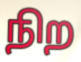
நிற